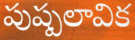
పుష్పలావిక